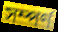
সম্পর্ণ